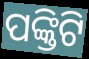
ପଙ୍କ୍ତିଟି